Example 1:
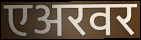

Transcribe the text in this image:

एअरवर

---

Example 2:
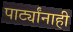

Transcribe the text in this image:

पार्ट्यांनाही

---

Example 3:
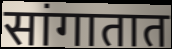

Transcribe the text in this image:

सांगातात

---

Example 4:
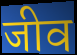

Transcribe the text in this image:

जीव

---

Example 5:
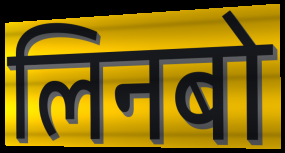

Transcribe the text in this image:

लिनबो